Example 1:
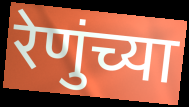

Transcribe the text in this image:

रेणुंच्या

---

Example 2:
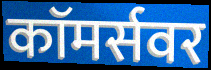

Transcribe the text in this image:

कॉमर्सवर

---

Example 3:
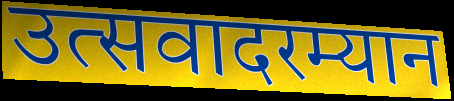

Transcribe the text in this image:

उत्सवादरम्यान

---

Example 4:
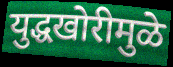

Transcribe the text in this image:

युद्धखोरीमुळे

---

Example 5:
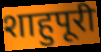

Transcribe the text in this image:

शाहुपूरी